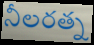
నీలరత్న